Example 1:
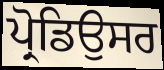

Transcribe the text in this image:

ਪ੍ਰੋਡਿਉਸਰ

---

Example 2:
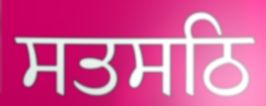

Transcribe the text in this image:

ਸਤਸਠਿ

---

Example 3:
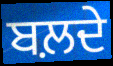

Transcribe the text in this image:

ਬਲ਼ਦੇ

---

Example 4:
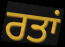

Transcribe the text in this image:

ਰਤਾਂ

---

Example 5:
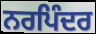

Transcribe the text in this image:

ਨਰਪਿੰਦਰ